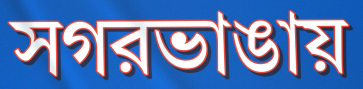
সগরভাঙায়